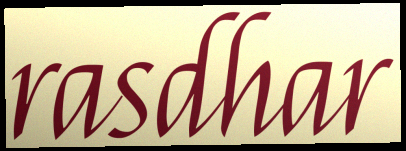
rasdhar